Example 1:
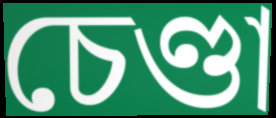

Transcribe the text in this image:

চেণ্ডা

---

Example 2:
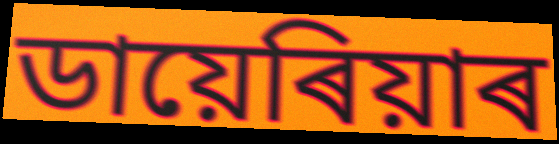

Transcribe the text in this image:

ডায়েৰিয়াৰ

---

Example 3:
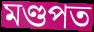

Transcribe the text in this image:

মণ্ডপত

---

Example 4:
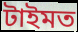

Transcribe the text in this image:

টাইমত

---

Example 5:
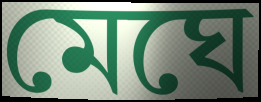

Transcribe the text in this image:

মেঘে